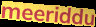
meeriddu